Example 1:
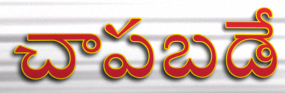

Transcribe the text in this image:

చాపబడే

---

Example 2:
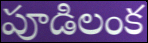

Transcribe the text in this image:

పూడిలంక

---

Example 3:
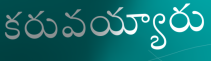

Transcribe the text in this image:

కరువయ్యారు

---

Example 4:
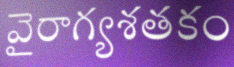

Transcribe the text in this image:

వైరాగ్యశతకం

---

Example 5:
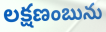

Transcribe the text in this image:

లక్షణంబును